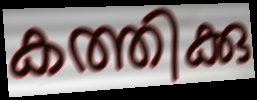
കത്തിക്കു